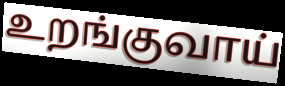
உறங்குவாய்